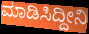
ಮಾಡಿಸಿದ್ದೀನಿ